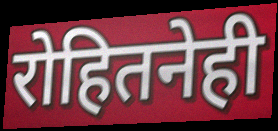
रोहितनेही